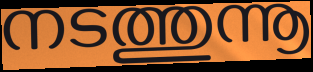
നടത്തുന്നൂ